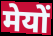
मेयों